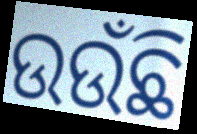
ଉଉଁଛି